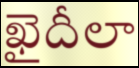
ఖైదీలా